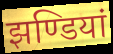
झण्डियां